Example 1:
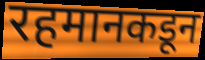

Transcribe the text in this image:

रहमानकडून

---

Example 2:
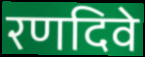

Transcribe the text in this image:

रणदिवे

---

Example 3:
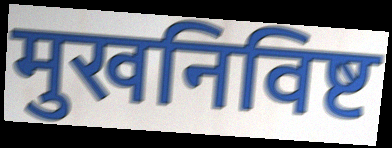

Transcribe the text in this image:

मुखनिविष्ट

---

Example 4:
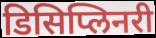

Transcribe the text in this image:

डिसिप्लिनरी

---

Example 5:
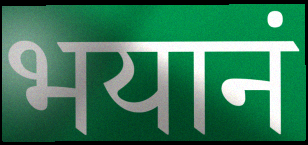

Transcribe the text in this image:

भयानं